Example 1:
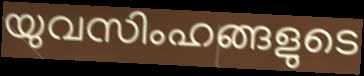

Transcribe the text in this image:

യുവസിംഹങ്ങളുടെ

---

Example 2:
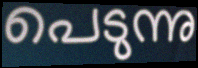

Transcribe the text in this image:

പെടുന്നു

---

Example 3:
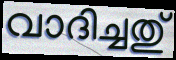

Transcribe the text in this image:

വാദിച്ചതു്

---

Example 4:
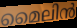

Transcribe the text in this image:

മൈലിൻ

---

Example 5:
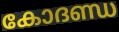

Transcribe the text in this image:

കോദണ്ഡ